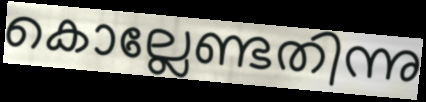
കൊല്ലേണ്ടതിന്നു